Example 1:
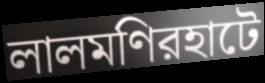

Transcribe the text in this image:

লালমণিরহাটে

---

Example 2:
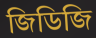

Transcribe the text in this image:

জিডিজি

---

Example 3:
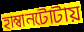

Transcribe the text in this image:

হাম্বানটোটায়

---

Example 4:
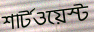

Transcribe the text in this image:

শার্টওয়েস্ট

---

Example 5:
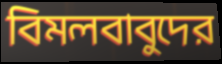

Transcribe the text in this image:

বিমলবাবুদের